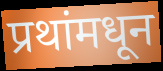
प्रथांमधून